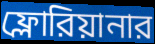
ফ্লোরিয়ানার